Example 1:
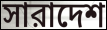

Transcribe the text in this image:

সারাদেশ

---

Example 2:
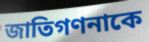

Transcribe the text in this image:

জাতিগণনাকে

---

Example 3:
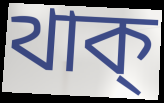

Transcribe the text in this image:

থাক্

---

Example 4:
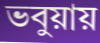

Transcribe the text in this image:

ভবুয়ায়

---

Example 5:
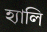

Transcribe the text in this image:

হ্যালি